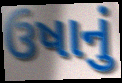
ઉષાનું